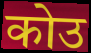
कोउ